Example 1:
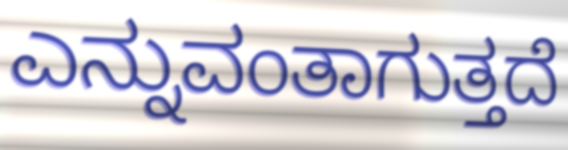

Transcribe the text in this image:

ಎನ್ನುವಂತಾಗುತ್ತದೆ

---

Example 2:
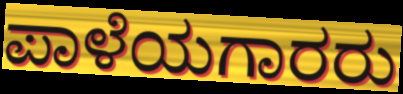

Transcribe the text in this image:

ಪಾಳೆಯಗಾರರು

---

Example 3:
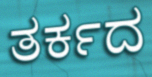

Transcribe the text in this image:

ತರ್ಕದ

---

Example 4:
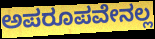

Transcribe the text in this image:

ಅಪರೂಪವೇನಲ್ಲ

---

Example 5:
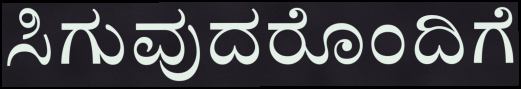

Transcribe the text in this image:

ಸಿಗುವುದರೊಂದಿಗೆ